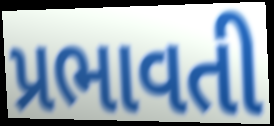
પ્રભાવતી